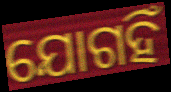
ଯୋଗହିଁ